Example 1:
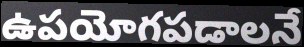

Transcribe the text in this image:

ఉపయోగపడాలనే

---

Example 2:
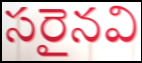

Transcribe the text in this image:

సరైనవి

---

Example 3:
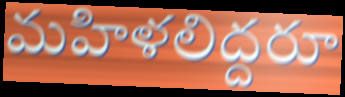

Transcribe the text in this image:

మహిళలిద్దరూ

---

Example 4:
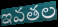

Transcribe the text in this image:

ఇవతల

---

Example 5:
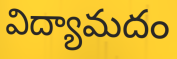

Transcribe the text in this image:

విద్యామదం